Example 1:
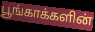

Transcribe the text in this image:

பூங்காக்களின்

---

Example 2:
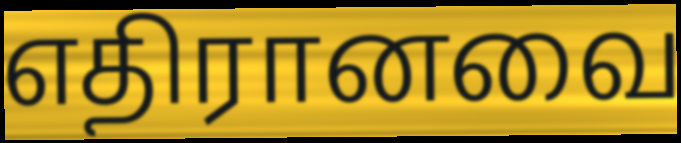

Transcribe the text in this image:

எதிரானவை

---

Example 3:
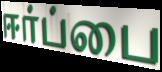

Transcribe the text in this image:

ஈர்ப்பை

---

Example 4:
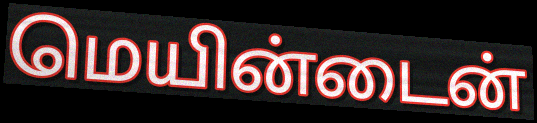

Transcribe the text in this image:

மெயின்டைன்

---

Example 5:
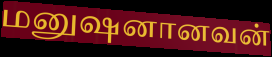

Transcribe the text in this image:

மனுஷனானவன்